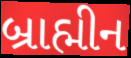
બ્રાહ્મીન